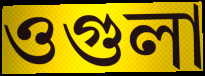
ওগুলা